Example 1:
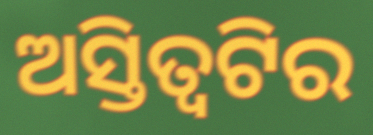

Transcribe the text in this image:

ଅସ୍ତିତ୍ୱଟିର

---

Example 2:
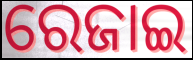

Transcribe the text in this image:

ରେଜାଇ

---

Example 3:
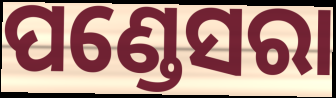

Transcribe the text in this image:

ପଣ୍ଡେସରା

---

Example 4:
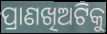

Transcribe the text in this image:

ପ୍ରାଣଖିଅଟିକୁ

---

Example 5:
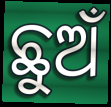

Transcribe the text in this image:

ଛୁଅଁ